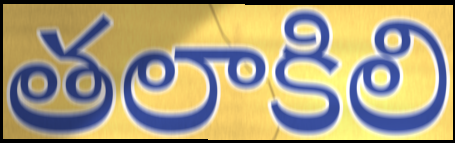
తలాకిలి